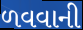
ળવવાની